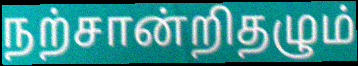
நற்சான்றிதழும்